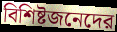
বিশিষ্টজনেদের